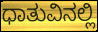
ಧಾತುವಿನಲ್ಲಿ